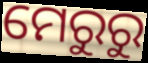
ମେରୁରୁ